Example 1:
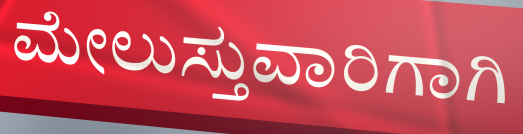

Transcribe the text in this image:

ಮೇಲುಸ್ತುವಾರಿಗಾಗಿ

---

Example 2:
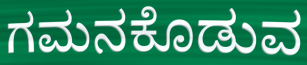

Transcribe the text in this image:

ಗಮನಕೊಡುವ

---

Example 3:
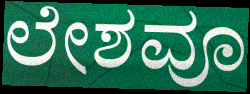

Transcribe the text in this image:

ಲೇಶವೂ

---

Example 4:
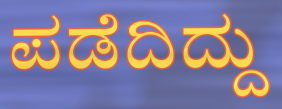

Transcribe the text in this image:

ಪಡೆದಿದ್ದು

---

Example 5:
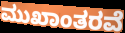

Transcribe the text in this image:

ಮುಖಾಂತರವೆ